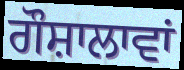
ਗੌਸ਼ਾਲਾਵਾਂ